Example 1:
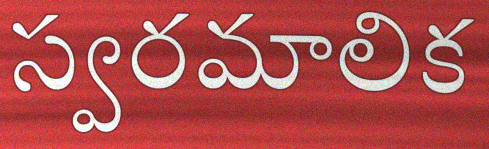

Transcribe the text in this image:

స్వరమాలిక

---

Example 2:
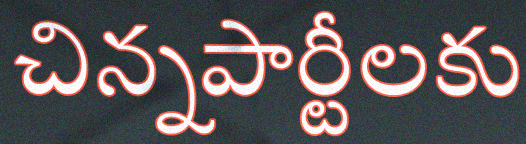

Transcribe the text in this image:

చిన్నపార్టీలకు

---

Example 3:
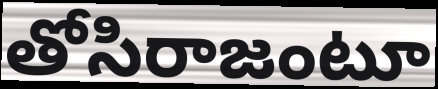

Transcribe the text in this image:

తోసిరాజంటూ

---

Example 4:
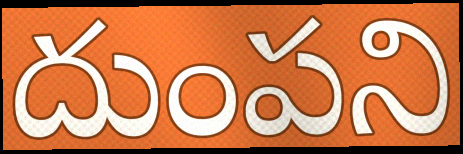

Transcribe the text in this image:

దుంపని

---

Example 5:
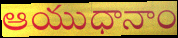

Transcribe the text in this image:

ఆయుధానాం